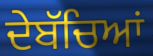
ਦੇਬੱਚਿਆਂ